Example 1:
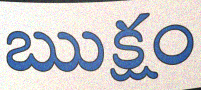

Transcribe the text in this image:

ఋక్షం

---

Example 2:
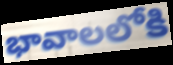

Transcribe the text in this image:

భావాలలోకి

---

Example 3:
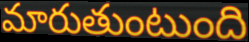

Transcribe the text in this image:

మారుతుంటుంది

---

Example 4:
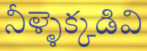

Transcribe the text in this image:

నీళ్ళెక్కడివి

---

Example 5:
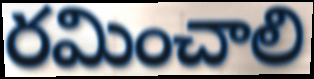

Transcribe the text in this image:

రమించాలి